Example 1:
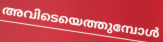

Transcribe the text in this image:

അവിടെയെത്തുമ്പോൾ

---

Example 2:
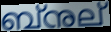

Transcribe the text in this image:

ബ്നുല്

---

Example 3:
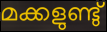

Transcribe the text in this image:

മക്കളുണ്ടു്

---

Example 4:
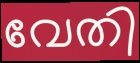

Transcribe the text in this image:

വേതി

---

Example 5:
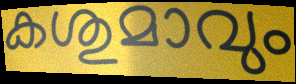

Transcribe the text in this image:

കശുമാവും